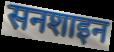
सनशाइन